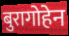
बुरागोहेन